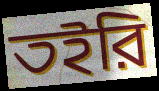
তইরি